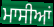
ਮਾਸੀਆਂ